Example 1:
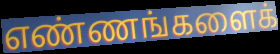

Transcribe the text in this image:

எண்ணங்களைக்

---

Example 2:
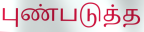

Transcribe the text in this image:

புண்படுத்த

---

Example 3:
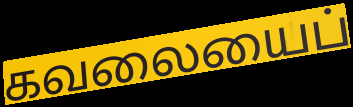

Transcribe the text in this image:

கவலையைப்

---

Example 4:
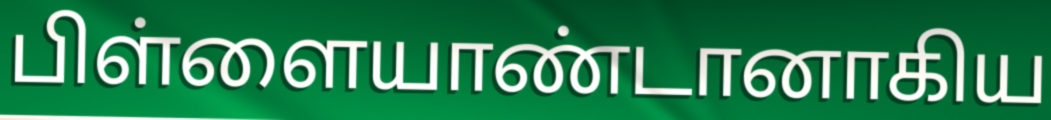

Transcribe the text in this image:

பிள்ளையாண்டானாகிய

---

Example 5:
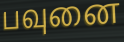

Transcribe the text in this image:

பவுனை